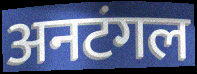
अनटंगल